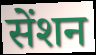
सेंशन